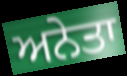
ਅਨੇਤਾ